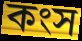
কংস